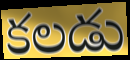
కలడు